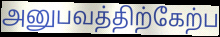
அனுபவத்திற்கேற்ப